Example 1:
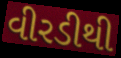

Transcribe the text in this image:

વીરડીથી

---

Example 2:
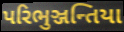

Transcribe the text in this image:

પરિભુઞ્જન્તિયા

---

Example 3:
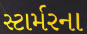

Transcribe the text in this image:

સ્ટાર્મરના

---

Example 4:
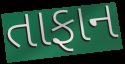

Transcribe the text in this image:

તાફાન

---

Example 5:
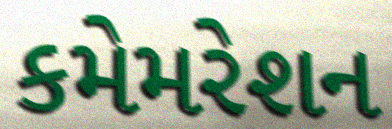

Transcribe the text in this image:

કમેમરેશન